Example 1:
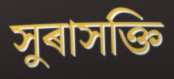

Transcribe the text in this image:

সুৰাসক্তি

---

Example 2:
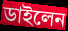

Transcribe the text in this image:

ডাইলেন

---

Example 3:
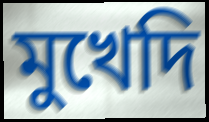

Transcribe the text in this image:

মুখেদি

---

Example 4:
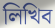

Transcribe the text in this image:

লিখিব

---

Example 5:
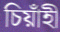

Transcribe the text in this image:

চিয়াঁহী